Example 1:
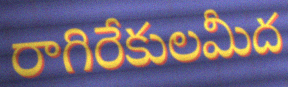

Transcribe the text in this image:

రాగిరేకులమీద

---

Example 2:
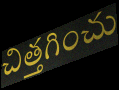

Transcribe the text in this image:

చిత్తగించు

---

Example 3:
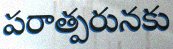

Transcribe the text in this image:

పరాత్పరునకు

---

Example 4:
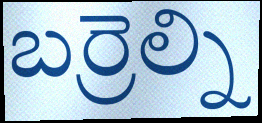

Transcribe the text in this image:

బర్రెల్ని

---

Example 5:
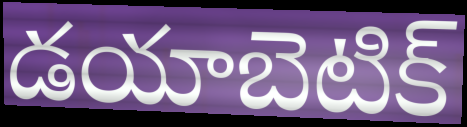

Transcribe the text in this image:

డయాబెటిక్